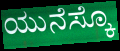
ಯುನೆಸ್ಕೊ